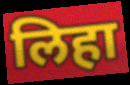
लिहा